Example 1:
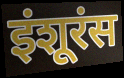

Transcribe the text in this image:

इंशूरंस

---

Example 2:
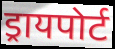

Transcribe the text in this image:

ड्रायपोर्ट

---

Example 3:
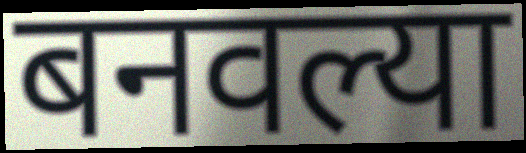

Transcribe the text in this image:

बनवल्या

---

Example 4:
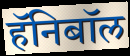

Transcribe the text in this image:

हॅनिबॉल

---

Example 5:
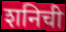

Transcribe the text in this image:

शनिची